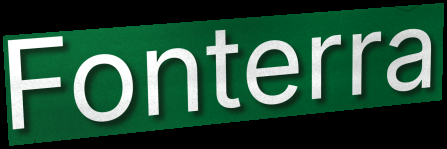
Fonterra